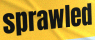
sprawled